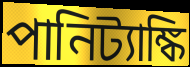
পানিট্যাঙ্কি